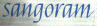
sangoram